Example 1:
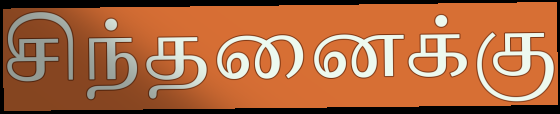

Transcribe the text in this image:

சிந்தனைக்கு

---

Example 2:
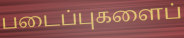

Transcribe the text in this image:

படைப்புகளைப்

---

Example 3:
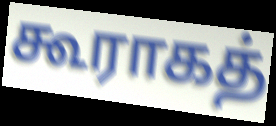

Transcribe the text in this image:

கூராகத்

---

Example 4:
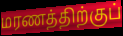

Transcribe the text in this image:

மரணத்திற்குப்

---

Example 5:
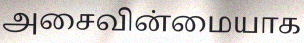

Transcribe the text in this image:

அசைவின்மையாக